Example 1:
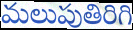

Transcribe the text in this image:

మలుపుతిరిగి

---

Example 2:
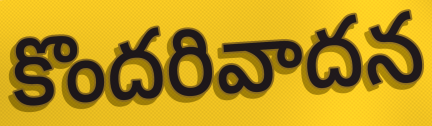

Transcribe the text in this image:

కొందరివాదన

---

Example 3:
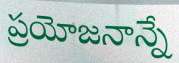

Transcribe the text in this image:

ప్రయోజనాన్నే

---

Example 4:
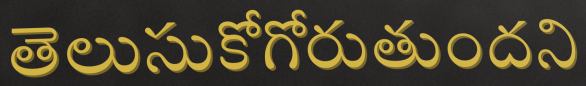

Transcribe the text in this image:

తెలుసుకోగోరుతుందని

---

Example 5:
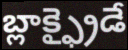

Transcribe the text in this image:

బ్లాక్ఫ్రైడే